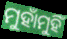
ମୁହାଁମୁହିଁ